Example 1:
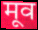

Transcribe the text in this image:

मूव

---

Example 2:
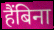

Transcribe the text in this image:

हैंबिना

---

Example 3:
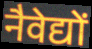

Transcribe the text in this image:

नैवेद्यों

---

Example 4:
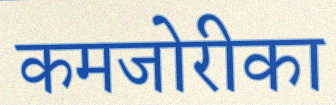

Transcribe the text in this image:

कमजोरीका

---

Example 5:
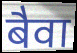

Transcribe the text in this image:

बैवा